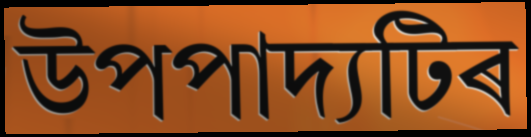
উপপাদ্যটিৰ